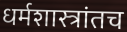
धर्मशास्त्रांतच